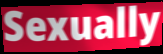
Sexually